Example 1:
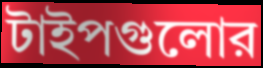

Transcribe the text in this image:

টাইপগুলোর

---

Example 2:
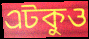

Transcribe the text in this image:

এটকুও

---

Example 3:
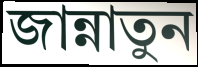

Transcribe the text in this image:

জান্নাতুন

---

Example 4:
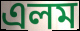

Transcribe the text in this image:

এলম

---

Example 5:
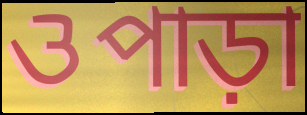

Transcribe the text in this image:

ওপাড়া